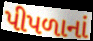
પીપળાનાં